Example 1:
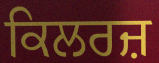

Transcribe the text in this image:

ਕਿਲਰਜ਼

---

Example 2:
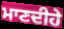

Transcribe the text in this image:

ਮਾਣਦੀਹੇ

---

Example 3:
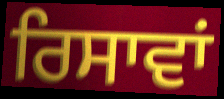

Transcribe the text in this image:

ਰਿਸਾਵਾਂ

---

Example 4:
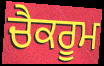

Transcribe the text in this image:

ਚੈਕਰੂਮ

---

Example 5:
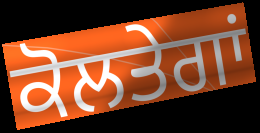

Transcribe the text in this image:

ਕੋਲਤੇਗਾਂ